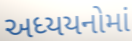
અધ્યયનોમાં